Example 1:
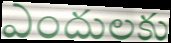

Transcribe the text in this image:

ఎందులకు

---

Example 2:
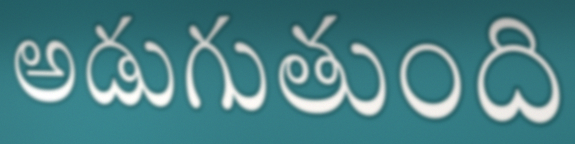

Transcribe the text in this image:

అడుగుతుంది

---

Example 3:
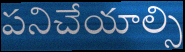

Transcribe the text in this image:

పనిచేయాల్సి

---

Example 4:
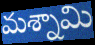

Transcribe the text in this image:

మశ్నామి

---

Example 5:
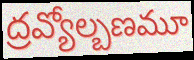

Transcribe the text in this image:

ద్రవ్యోల్బణమూ